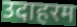
उदाहरम